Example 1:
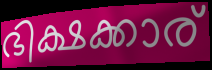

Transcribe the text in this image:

ഭിക്ഷക്കാര്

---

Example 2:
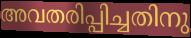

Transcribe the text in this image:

അവതരിപ്പിച്ചതിനു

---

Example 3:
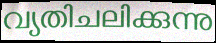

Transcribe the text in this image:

വ്യതിചലിക്കുന്നു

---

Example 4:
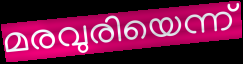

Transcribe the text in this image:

മരവുരിയെന്ന്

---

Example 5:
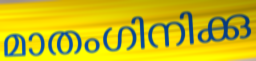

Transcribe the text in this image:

മാതംഗിനിക്കു